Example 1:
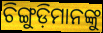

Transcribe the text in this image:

ଚିଙ୍ଗୁଡ଼ିମାନଙ୍କୁ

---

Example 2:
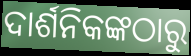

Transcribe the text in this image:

ଦାର୍ଶନିକଙ୍କଠାରୁ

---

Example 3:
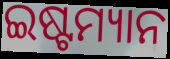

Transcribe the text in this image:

ଇଷ୍ଟମ୍ୟାନ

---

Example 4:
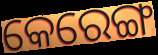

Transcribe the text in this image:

କେରେଙ୍ଗ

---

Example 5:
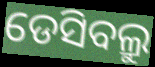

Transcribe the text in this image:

ଡେସିବଲ୍ରୁ